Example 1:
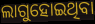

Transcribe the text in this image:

ଲାଗୁହୋଇଥିବା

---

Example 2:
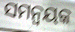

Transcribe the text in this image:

ସମନ୍ୱୟକ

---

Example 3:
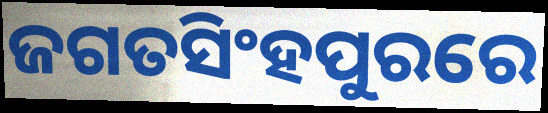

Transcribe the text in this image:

ଜଗତସିଂହପୁରରେ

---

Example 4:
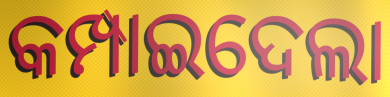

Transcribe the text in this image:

କମ୍ପାଇଦେଲା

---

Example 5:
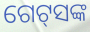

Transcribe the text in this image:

ଗେଟ୍‌ସଙ୍କ